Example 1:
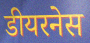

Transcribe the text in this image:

डीयरनेस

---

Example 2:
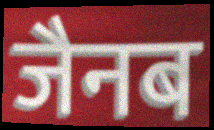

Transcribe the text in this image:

जैनब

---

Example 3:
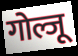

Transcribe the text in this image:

गोल्जू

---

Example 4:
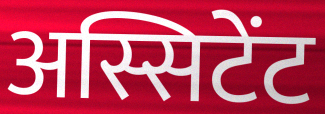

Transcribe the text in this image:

अस्सिटेंट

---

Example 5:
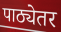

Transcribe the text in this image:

पाठ्येतर